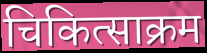
चिकित्साक्रम